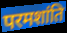
परमशांति